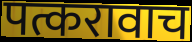
पत्करावाच